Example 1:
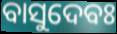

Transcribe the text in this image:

ବାସୁଦେବଃ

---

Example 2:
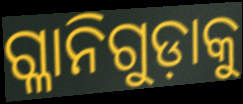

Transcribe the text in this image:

ଗ୍ଳାନିଗୁଡ଼ାକୁ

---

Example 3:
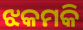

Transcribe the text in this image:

ଝକମକି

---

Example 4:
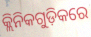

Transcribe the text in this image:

କ୍ଲିନିକଗୁଡ଼ିକରେ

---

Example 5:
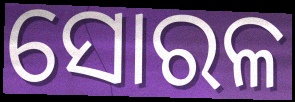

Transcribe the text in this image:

ସୋରଳ